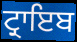
ਟ੍ਰਾਇਬ